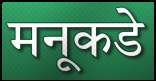
मनूकडे